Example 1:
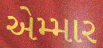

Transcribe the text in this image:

એમ્માર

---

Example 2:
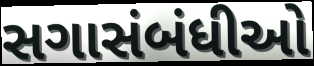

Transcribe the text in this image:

સગાસંબંધીઓ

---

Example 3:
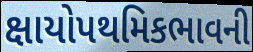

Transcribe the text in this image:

ક્ષાયોપથમિકભાવની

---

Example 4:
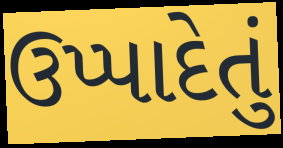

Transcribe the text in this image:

ઉપ્પાદેતું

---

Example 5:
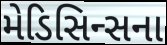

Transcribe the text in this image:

મેડિસિન્સના